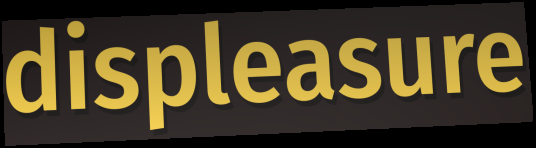
displeasure